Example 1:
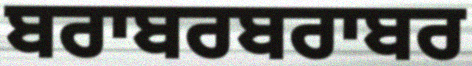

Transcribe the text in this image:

ਬਰਾਬਰਬਰਾਬਰ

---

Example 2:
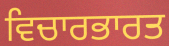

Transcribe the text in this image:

ਵਿਚਾਰਭਾਰਤ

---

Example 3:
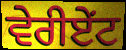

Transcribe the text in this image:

ਵੇਰੀਏਂਟ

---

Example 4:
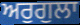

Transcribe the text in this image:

ਅਰੁਗੁਲਾ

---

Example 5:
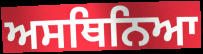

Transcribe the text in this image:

ਅਸਥਿਨਿਆ